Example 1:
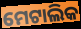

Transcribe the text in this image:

ମେଟାଲିକ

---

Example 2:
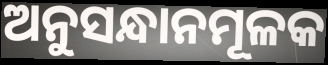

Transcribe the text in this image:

ଅନୁସନ୍ଧାନମୂଳକ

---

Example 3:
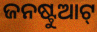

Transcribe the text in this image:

ଜନଷ୍ଟୁଆଟ୍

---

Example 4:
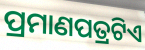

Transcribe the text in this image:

ପ୍ରମାଣପତ୍ରଟିଏ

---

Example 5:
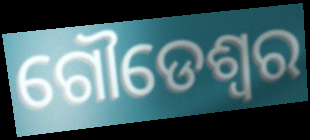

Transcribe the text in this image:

ଗୌଡେଶ୍ୱର